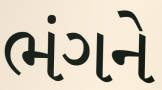
ભંગને